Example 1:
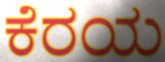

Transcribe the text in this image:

ಕೆರಯ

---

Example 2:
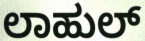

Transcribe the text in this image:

ಲಾಹುಲ್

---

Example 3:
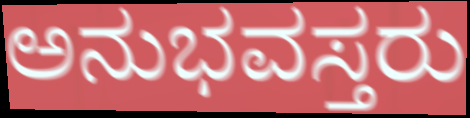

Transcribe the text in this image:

ಅನುಭವಸ್ತರು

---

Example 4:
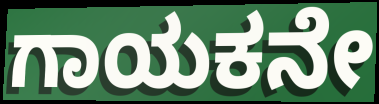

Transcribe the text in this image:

ಗಾಯಕನೇ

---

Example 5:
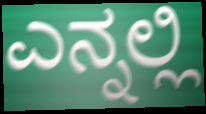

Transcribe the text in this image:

ಎನ್ನಲ್ಲಿ